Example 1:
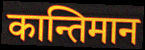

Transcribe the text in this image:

कान्तिमान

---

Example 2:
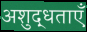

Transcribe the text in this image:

अशुद्धताएँ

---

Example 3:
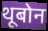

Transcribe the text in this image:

थूबोन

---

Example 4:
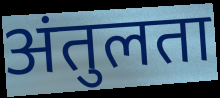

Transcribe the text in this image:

अंतुलता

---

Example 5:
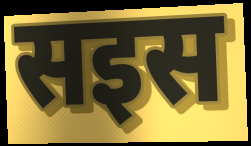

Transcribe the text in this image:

सइस